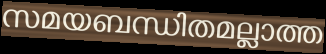
സമയബന്ധിതമല്ലാത്ത